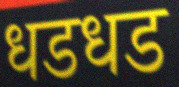
धडधड